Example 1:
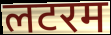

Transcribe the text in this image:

लटरम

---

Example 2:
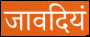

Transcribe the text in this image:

जावदियं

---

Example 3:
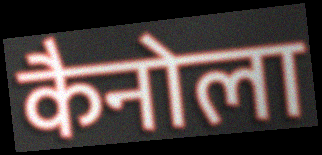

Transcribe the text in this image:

कैनोला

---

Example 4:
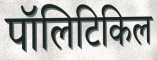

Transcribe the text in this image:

पॉलिटिकिल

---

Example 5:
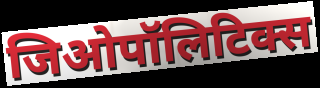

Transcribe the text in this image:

जिओपॉलिटिक्स